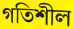
গতিশীল